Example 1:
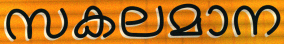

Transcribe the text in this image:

സകലമാന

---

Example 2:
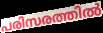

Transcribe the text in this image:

പരിസരത്തിൽ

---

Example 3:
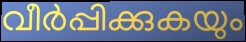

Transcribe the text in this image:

വീർപ്പിക്കുകയും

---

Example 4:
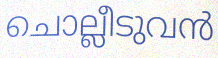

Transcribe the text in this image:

ചൊല്ലീടുവൻ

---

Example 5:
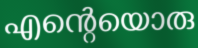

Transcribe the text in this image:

എന്റെയൊരു